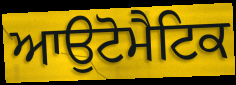
ਆਉਟੋਮੈਟਿਕ